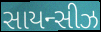
સાયન્સીઝ